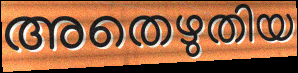
അതെഴുതിയ